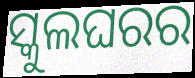
ସ୍କୁଲଘରର